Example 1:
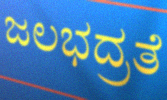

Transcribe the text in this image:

ಜಲಭದ್ರತೆ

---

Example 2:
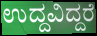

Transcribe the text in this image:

ಉದ್ದವಿದ್ದರೆ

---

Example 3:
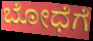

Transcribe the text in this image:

ಬೋಧೆಗೆ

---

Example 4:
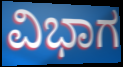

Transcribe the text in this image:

ವಿಭಾಗ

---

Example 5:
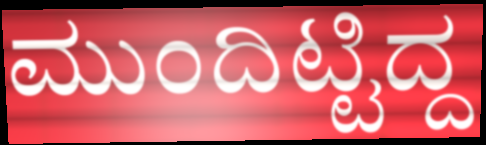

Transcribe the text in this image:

ಮುಂದಿಟ್ಟಿದ್ದ